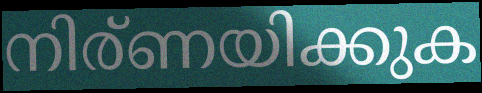
നിര്ണയിക്കുക